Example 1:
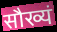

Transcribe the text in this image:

सौख्यं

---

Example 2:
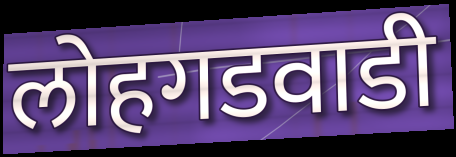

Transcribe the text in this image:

लोहगडवाडी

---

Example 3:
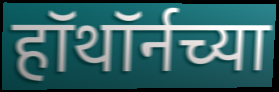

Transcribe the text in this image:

हॉथॉर्नच्या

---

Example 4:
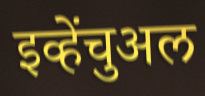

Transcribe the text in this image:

इव्हेंचुअल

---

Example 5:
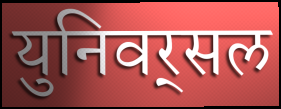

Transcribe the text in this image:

युनिवर्सल